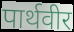
पार्थवीर